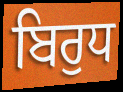
ਬਿਰੁਧ